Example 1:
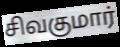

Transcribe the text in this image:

சிவகுமார்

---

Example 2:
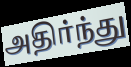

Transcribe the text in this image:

அதிர்ந்து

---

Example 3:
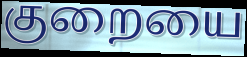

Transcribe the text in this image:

குறையை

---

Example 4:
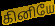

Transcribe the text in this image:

கினியே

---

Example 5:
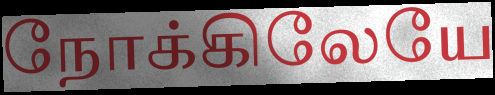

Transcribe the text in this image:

நோக்கிலேயே